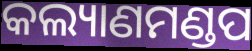
କଲ୍ୟାଣମଣ୍ଡପ